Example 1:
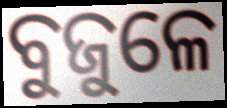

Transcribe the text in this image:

ବୁଜୁଳେ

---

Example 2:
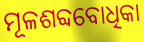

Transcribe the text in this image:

ମୂଳଶବ୍ଦବୋଧିକା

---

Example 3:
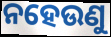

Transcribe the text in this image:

ନହେଉଣୁ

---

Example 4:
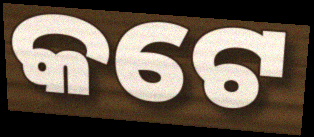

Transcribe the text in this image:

କଟେ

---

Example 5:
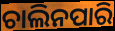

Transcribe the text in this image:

ଚାଲିନପାରି